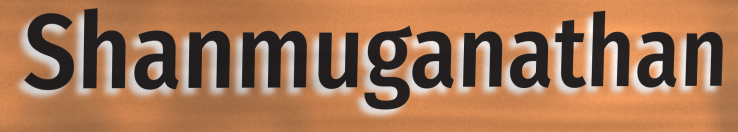
Shanmuganathan